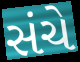
સંચે